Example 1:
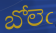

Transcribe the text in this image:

బోలెఁ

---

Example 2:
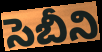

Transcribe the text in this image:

సెబీని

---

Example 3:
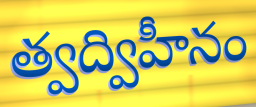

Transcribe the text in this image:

త్వద్విహీనం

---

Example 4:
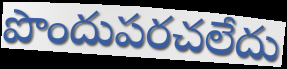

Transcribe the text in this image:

పొందుపరచలేదు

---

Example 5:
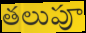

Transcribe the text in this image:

తలుపూ